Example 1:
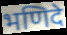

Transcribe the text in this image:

भणिदे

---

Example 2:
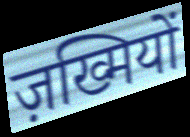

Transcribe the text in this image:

ज़ख्मियों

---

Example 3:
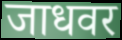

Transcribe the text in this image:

जाधवर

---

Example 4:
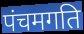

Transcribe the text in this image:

पंचमगति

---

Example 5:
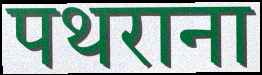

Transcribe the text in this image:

पथराना